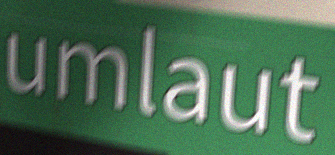
umlaut